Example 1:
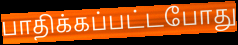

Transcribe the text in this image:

பாதிக்கப்பட்டபோது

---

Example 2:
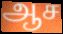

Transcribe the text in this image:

ஆச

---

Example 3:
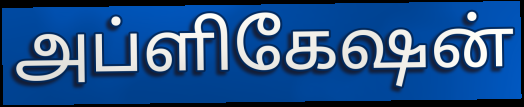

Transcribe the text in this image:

அப்ளிகேஷன்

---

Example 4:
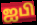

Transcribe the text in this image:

ஐபி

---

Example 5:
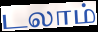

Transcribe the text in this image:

டலாம்